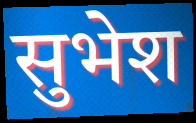
सुभेश